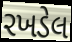
રખડેલ